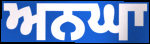
ਅਨਘਾ